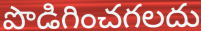
పొడిగించగలదు